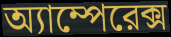
অ্যাম্পেরেক্স